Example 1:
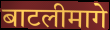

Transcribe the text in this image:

बाटलीमागे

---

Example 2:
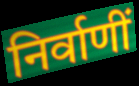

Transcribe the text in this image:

निर्वाणीं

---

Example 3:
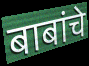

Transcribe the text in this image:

बाबांचे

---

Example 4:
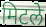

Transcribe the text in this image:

मिटले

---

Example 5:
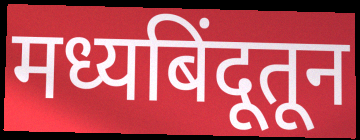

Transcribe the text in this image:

मध्यबिंदूतून